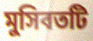
মুসিবতটি